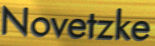
Novetzke